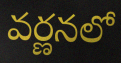
వర్ణనలో